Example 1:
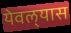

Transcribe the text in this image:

येवल्यास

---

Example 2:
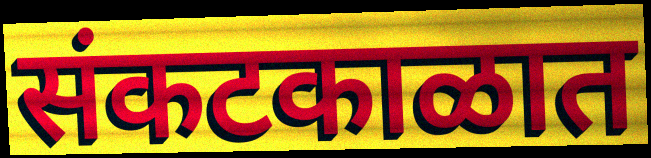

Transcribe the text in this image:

संकटकाळात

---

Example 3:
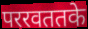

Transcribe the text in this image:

पररवततके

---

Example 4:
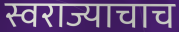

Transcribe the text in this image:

स्वराज्याचाच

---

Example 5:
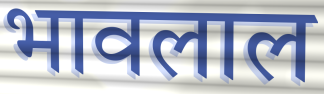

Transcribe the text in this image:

भावलाल